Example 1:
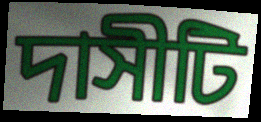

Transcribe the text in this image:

দাসীটি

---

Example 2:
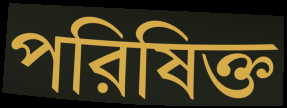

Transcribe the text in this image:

পরিষিক্ত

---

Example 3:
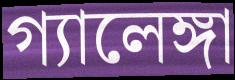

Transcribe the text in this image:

গ্যালেঙ্গা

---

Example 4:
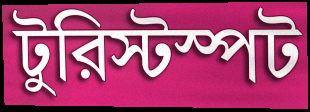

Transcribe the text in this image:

টুরিস্টস্পট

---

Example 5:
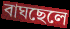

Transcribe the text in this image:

বাঘছেলে